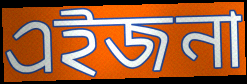
এইজনা